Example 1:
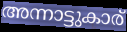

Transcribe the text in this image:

അന്നാട്ടുകാര്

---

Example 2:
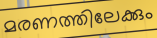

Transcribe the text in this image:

മരണത്തിലേക്കും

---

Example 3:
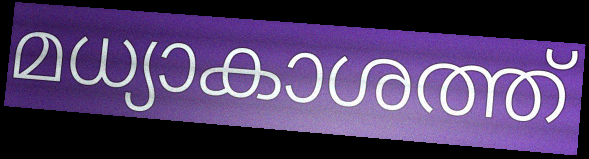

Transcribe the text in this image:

മധ്യാകാശത്ത്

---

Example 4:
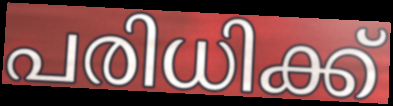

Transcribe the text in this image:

പരിധിക്ക്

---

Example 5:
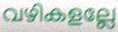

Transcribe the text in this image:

വഴികളല്ലേ